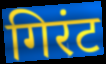
गिरंट